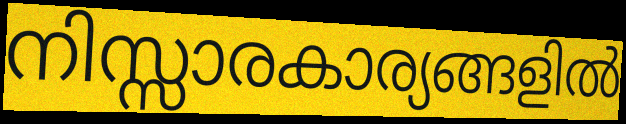
നിസ്സാരകാര്യങ്ങളിൽ